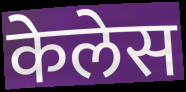
केलेस